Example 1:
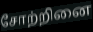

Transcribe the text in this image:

சோற்றினை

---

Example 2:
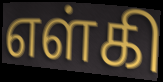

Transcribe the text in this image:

எள்கி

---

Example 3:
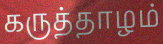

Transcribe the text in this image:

கருத்தாழம்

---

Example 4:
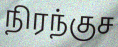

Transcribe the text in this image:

நிரந்குச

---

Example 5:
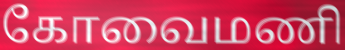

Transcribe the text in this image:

கோவைமணி